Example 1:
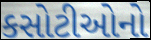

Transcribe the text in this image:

કસોટીઓનો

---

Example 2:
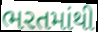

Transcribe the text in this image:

ભરતમાંથી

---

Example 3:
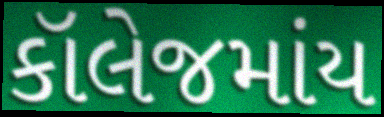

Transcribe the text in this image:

કૉલેજમાંય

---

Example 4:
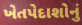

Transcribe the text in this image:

ખેતપેદાશોનું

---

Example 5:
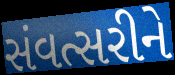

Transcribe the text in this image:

સંવત્સરીને